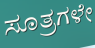
ಸೂತ್ರಗಳೇ